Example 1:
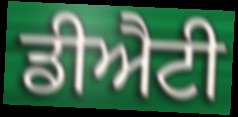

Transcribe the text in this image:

ਡੀਐਟੀ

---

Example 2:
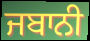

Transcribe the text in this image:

ਜਬਾਨੀ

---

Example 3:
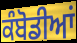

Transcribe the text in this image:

ਕੰਬੋਡੀਆਂ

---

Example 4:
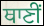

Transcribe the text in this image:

ਥਾਣੀਂ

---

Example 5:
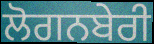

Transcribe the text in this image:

ਲੋਗਨਬੇਰੀ